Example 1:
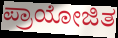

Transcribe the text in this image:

ಪ್ರಾಯೋಜಿತ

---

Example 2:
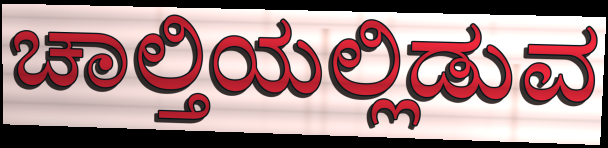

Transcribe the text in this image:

ಚಾಲ್ತಿಯಲ್ಲಿಡುವ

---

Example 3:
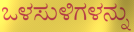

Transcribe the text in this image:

ಒಳಸುಳಿಗಳನ್ನು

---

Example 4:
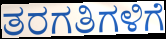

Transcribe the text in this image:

ತರಗತಿಗಳಿಗೆ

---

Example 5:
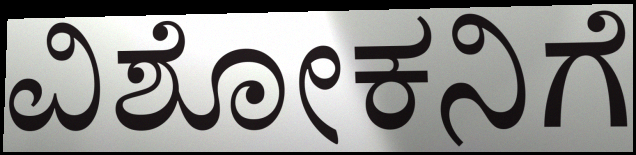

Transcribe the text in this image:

ವಿಶೋಕನಿಗೆ